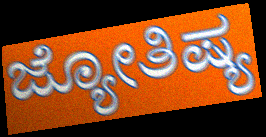
ಜ್ಯೋತಿಷ್ಯ